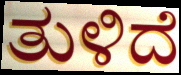
ತುಳಿದೆ